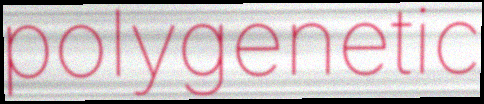
polygenetic